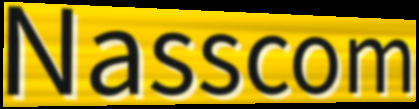
Nasscom